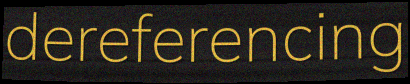
dereferencing